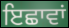
ਇਛਾਵਾਂ